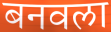
बनवला